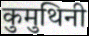
कुमुथिनी